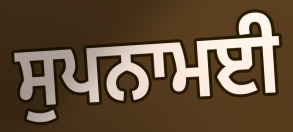
ਸੁਪਨਾਮਈ